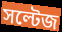
সল্টেজ